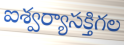
ఐశ్వర్యాసక్తిగల